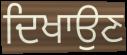
ਦਿਖਾਉਣ